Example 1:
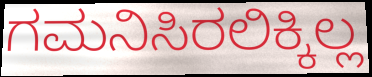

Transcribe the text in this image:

ಗಮನಿಸಿರಲಿಕ್ಕಿಲ್ಲ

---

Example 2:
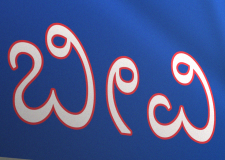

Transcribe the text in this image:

ಬೀವಿ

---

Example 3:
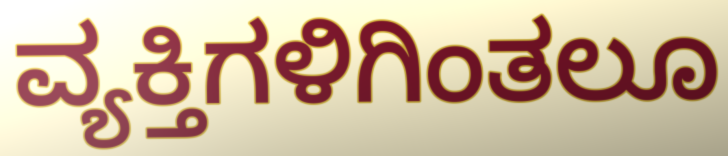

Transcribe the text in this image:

ವ್ಯಕ್ತಿಗಳಿಗಿಂತಲೂ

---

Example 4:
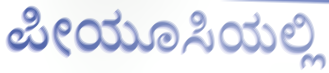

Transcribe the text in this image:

ಪೀಯೂಸಿಯಲ್ಲಿ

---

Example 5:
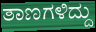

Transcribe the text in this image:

ತಾಣಗಳಿದ್ದು